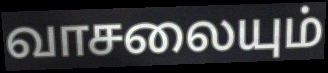
வாசலையும்